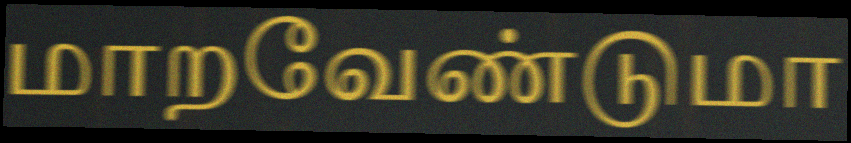
மாறவேண்டுமா